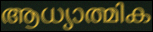
ആധ്യാത്മിക